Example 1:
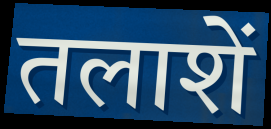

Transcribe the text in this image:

तलाशें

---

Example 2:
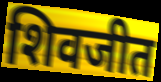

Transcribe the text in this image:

शिवजीत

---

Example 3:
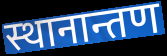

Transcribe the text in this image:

स्थानान्तण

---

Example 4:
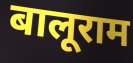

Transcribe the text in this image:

बालूराम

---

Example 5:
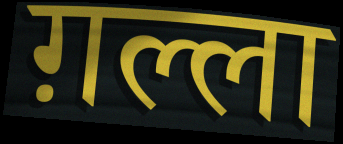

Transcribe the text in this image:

ग़ल्ला